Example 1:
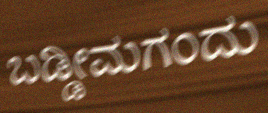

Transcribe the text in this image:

ಬಡ್ಡೀಮಗಂದು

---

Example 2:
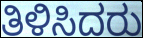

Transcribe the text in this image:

ತಿಳಿಸಿದರು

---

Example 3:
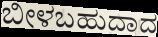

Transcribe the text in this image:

ಬೀಳಬಹುದಾದ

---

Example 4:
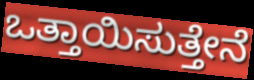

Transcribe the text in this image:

ಒತ್ತಾಯಿಸುತ್ತೇನೆ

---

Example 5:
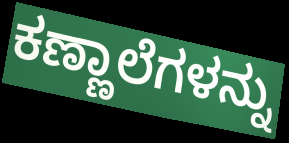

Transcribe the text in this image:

ಕಣ್ಣಾಲೆಗಳನ್ನು